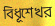
বিধূশেখর